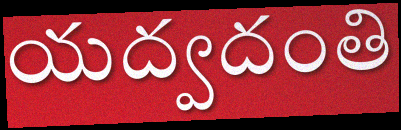
యద్వదంతి